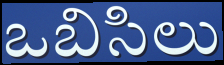
ఒబిసిలు